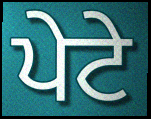
ਪੇਟੇ